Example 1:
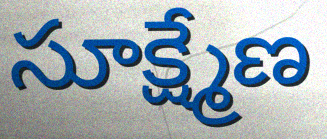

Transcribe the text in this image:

సూక్ష్మేణ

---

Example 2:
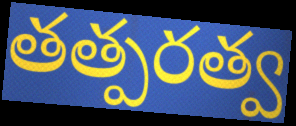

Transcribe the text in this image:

తత్పరత్వ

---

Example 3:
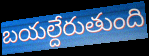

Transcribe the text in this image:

బయల్దేరుతుంది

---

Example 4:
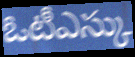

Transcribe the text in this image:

ఓటీఎస్కు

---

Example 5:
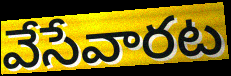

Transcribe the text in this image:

వేసేవారట